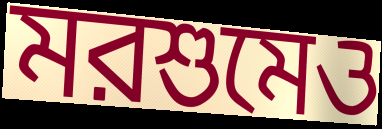
মরশুমেও